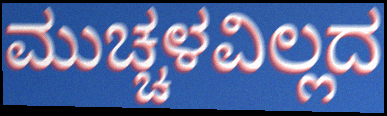
ಮುಚ್ಚಳವಿಲ್ಲದ